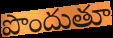
పొందుతూ